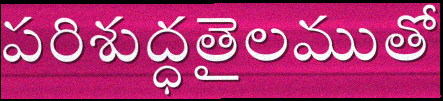
పరిశుద్ధతైలముతో